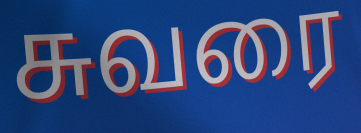
சுவரை